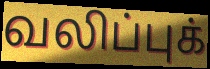
வலிப்புக்